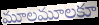
మూలమూలకూ